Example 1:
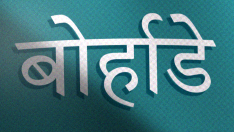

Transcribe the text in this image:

बोर्हाडे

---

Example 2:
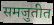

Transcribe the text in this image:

समजुतीत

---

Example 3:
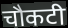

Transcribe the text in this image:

चौकटी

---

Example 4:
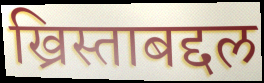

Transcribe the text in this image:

ख्रिस्ताबद्दल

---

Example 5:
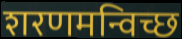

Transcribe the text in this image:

शरणमन्विच्छ